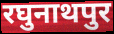
रघुनाथपुर